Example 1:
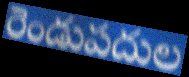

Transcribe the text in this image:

రెండుపదుల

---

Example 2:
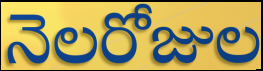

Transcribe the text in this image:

నెలరోజుల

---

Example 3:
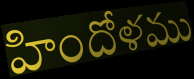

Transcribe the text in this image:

హిందోళము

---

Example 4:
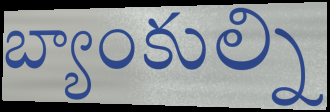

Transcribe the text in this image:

బ్యాంకుల్ని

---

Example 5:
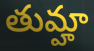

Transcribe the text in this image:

తుమ్హా